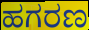
ಹಗರಣ